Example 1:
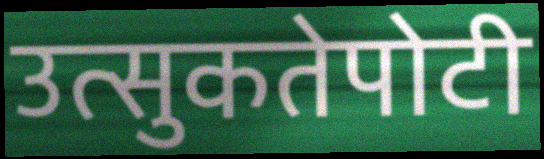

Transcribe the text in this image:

उत्सुकतेपोटी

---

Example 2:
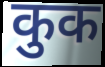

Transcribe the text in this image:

कुक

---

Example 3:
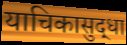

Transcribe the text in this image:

याचिकासुद्धा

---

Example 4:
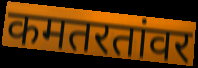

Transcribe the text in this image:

कमतरतांवर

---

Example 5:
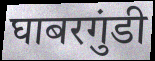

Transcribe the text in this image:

घाबरगुंडी